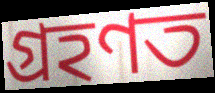
গ্ৰহণত